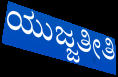
ಯುಜ್ಜತೀತಿ